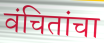
वंचितांचा